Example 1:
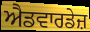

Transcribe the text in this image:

ਐਡਵਾਰਡੇਜ਼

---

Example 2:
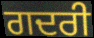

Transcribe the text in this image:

ਗਦਰੀ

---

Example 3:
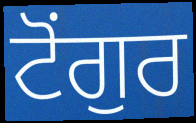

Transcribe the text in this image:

ਟੋਂਗੁਰ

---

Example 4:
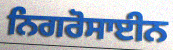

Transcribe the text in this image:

ਨਿਗਰੋਸਾਈਨ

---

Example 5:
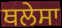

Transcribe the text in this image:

ਥਲੇਸਾ